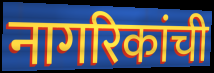
नागरिकांची